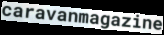
caravanmagazine